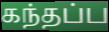
கந்தப்ப